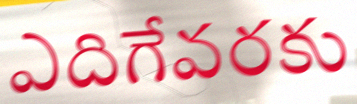
ఎదిగేవరకు